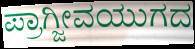
ಪ್ರಾಗ್ಜೀವಯುಗದ